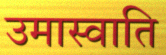
उमास्वाति